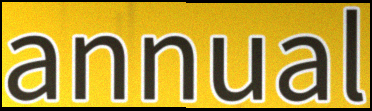
annual